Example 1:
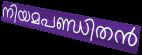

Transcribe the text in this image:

നിയമപണ്ഡിതൻ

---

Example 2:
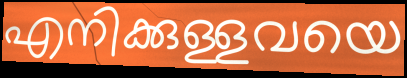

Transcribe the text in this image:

എനിക്കുള്ളവയെ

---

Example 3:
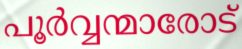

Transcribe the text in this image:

പൂർവ്വന്മാരോട്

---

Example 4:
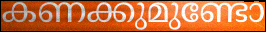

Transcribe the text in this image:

കണക്കുമുണ്ടോ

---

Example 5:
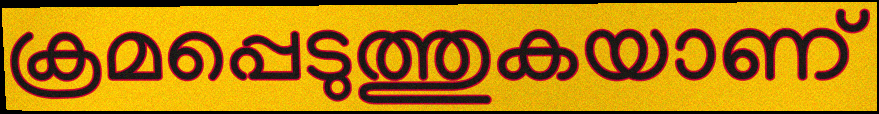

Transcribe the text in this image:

ക്രമപ്പെടുത്തുകയാണ്